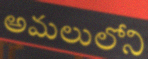
అమలులోని